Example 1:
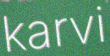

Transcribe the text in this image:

karvi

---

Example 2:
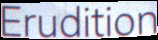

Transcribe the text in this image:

Erudition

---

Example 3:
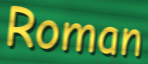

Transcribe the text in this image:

Roman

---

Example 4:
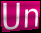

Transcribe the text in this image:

Un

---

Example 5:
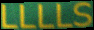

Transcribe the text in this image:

LLLLS